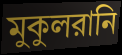
মুকুলরানি